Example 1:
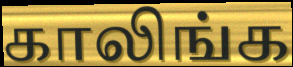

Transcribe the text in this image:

காலிங்க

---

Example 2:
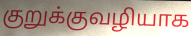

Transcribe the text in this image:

குறுக்குவழியாக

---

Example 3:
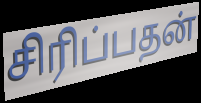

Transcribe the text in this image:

சிரிப்பதன்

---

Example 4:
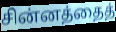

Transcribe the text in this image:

சின்னத்தைத்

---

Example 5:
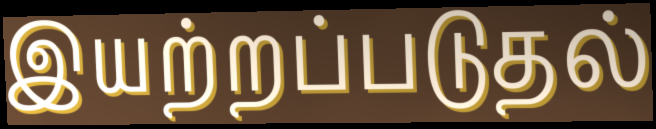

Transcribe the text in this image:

இயற்றப்படுதல்